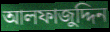
আলফাজুদ্দিন